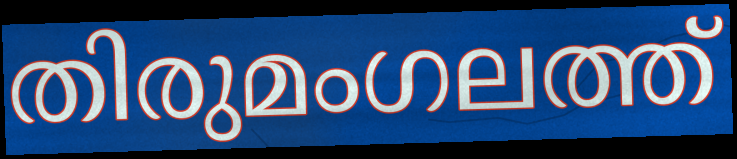
തിരുമംഗലത്ത്